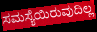
ಸಮಸ್ಯೆಯಿರುವುದಿಲ್ಲ